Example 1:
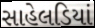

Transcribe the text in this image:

સાહેલડિયાં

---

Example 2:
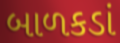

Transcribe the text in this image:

બાળકડાં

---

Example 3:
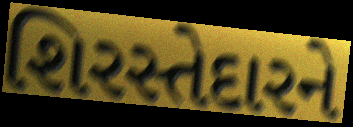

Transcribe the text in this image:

શિરસ્તેદારને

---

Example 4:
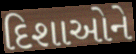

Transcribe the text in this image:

દિશાઓને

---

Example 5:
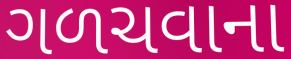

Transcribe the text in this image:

ગળચવાના